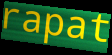
rapat